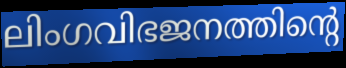
ലിംഗവിഭജനത്തിന്റെ